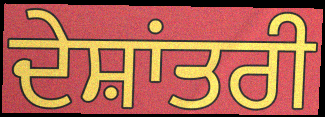
ਦੇਸ਼ਾਂਤਰੀ